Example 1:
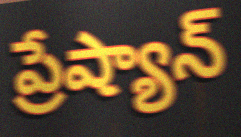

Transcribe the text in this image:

ప్రేష్యాన్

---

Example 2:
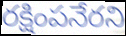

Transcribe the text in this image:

రక్షింపనేరని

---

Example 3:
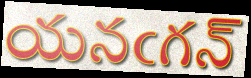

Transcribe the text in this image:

యనఁగన్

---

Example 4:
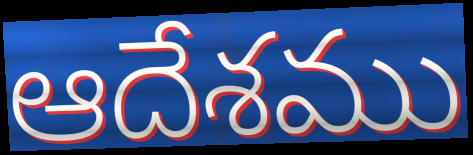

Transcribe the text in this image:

ఆదేశము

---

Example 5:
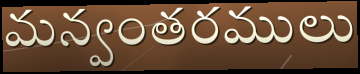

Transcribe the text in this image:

మన్వంతరములు